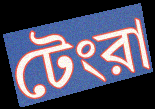
টেংরা